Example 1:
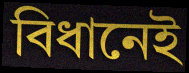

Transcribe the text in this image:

বিধানেই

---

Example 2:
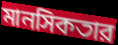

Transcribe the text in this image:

মানসিকতার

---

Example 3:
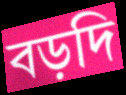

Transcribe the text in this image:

বড়দি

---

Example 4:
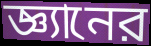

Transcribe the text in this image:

জ্ঞ্যানের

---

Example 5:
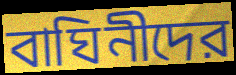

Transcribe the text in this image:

বাঘিনীদের